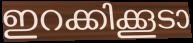
ഇറക്കിക്കൂടാ